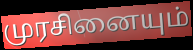
முரசினையும்